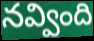
నవ్వింది